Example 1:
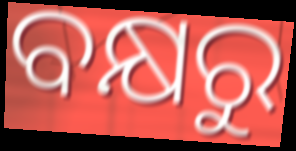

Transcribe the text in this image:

ବକ୍ଷରୁ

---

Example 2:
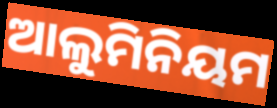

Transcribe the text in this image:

ଆଲୁମିନିୟମ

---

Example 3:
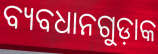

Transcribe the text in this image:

ବ୍ୟବଧାନଗୁଡ଼ାକ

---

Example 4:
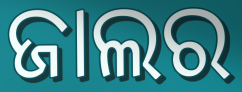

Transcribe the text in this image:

ଜାଲର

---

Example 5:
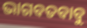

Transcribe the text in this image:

ଭାଗବତବାବୁ